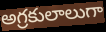
అగ్రకులాలుగా